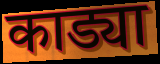
काड्या